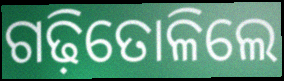
ଗଢ଼ିତୋଳିଲେ